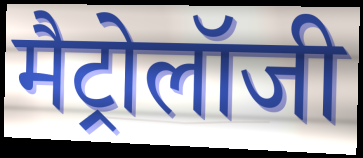
मैट्रोलॉजी